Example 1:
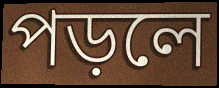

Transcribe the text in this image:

পড়লে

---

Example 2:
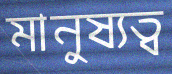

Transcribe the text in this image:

মানুষ্যত্ব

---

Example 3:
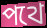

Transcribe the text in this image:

পথে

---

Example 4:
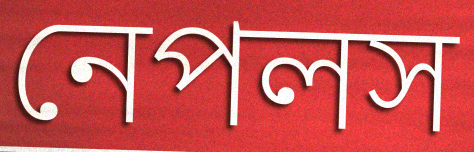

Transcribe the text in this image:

নেপলস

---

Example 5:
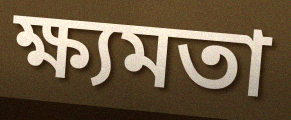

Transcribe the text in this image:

ক্ষ্যমতা